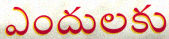
ఎందులకు